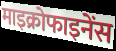
माइक्रोफाइनेंस